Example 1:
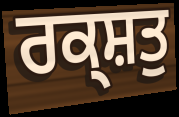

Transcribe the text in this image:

ਰਕ੍ਸ਼ਤੁ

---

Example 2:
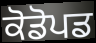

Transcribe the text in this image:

ਕੋਡੋਪਡ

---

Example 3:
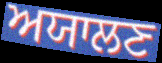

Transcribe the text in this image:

ਅਯਾਲਣ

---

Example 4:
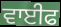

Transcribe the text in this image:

ਵਾਈਫ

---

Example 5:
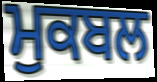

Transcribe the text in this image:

ਮੁਕਬਲ